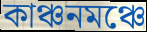
কাঞ্চনমঞ্চে